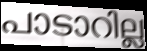
പാടാറില്ല